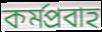
কর্মপ্রবাহ